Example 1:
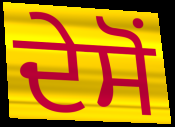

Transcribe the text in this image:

ਦੇਸੋਂ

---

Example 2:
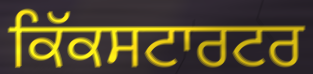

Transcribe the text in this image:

ਕਿੱਕਸਟਾਰਟਰ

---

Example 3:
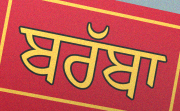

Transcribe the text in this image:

ਬਰੱਬਾ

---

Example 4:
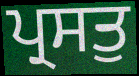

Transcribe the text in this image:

ਪ੍ਰਸਤੁ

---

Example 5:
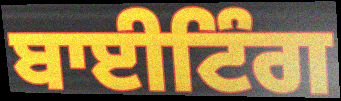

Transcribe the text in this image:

ਬਾਈਟਿੰਗ